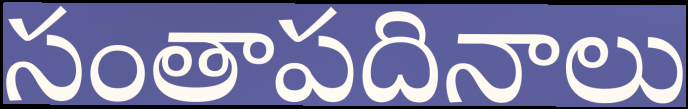
సంతాపదినాలు